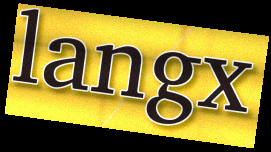
langx